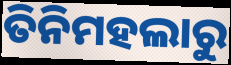
ତିନିମହଲାରୁ